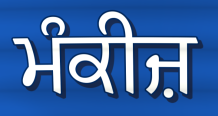
ਮੰਕੀਜ਼